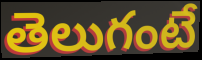
తెలుగంటే